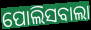
ପୋଲିସବାଲା